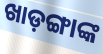
ଖାଡ଼ଙ୍ଗାଙ୍କ